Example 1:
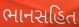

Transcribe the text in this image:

ભાનસહિત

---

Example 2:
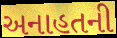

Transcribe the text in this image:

અનાહતની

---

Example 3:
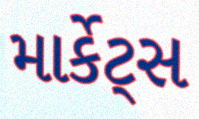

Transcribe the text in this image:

માર્કેટ્સ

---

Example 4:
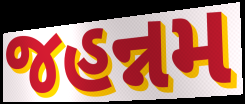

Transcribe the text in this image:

જહન્નમ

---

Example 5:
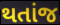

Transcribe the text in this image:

થતાંજ